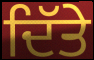
ਦਿੱਤੇ